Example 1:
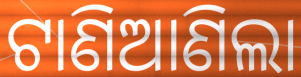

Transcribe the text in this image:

ଟାଣିଆଣିଲା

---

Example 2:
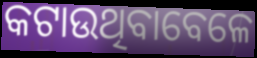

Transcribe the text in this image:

କଟାଉଥିବାବେଳେ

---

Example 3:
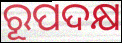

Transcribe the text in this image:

ରୂପଦକ୍ଷ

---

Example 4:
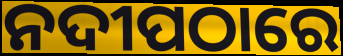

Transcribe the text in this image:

ନଦୀପଠାରେ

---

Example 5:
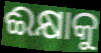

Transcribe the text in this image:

ଈକ୍ଷାକୁ